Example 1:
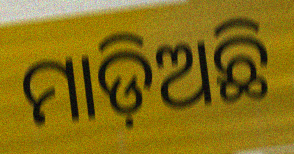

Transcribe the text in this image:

ମାଡ଼ିଅଛି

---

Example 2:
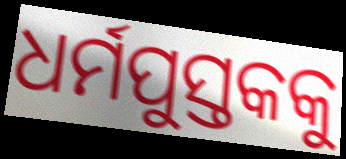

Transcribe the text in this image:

ଧର୍ମପୁସ୍ତକକୁ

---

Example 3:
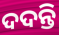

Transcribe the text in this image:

ଦଦନ୍ତି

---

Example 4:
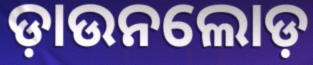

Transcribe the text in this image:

ଡ଼ାଉନଲୋଡ଼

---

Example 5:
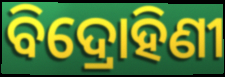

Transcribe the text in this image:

ବିଦ୍ରୋହିଣୀ